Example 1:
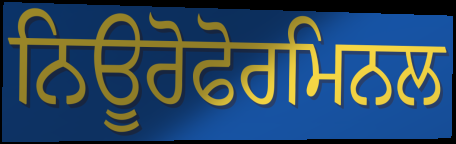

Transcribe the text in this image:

ਨਿਊਰੋਫੋਰਮਿਨਲ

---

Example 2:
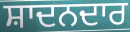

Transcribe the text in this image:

ਸ਼ਾਦਨਦਾਰ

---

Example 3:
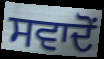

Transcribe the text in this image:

ਸਵਾਦੋਂ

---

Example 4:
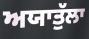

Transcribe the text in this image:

ਅਯਾਤੁੱਲਾ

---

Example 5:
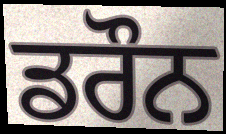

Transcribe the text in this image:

ਡਰੌਨ